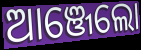
ଆଞ୍ଜେଲୋ